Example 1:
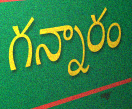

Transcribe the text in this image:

గన్నారం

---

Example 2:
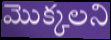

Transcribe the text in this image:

మొక్కలని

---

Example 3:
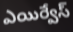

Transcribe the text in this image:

ఎయిర్వేస్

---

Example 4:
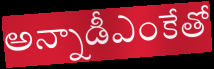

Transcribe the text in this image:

అన్నాడీఎంకేతో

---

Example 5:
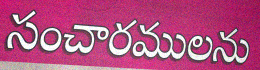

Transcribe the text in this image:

సంచారములను